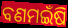
ବଣମଇଁଷି